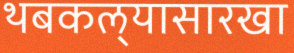
थबकल्यासारखा